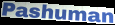
Pashuman